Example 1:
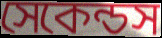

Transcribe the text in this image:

সেকেন্ডস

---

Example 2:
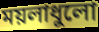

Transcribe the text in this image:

ময়লাধুলো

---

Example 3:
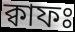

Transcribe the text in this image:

ক্বাফঃ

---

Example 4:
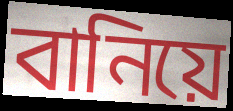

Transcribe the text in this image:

বানিয়ে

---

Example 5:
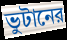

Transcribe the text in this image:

ভুটানের